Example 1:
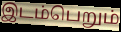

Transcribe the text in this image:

இடம்பெறும்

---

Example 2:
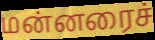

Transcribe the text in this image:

மன்னரைச்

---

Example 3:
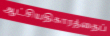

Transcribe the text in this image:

ஆட்சியதிகாரத்தைப்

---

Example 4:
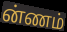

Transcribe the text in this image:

ன்ணம்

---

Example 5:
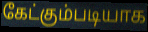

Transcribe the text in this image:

கேட்கும்படியாக